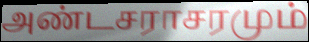
அண்டசராசரமும்